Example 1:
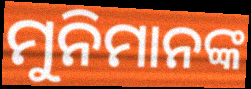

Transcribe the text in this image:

ମୁନିମାନଙ୍କ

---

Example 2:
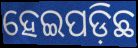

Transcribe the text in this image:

ହେଇପଡ଼ିଛ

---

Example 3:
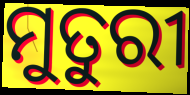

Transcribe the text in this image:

ମୁତୁରୀ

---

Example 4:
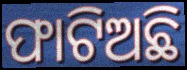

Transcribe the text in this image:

ଫାଟିଅଛି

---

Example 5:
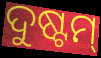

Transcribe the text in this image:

ଦୁଷ୍ଟମ୍